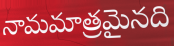
నామమాత్రమైనది